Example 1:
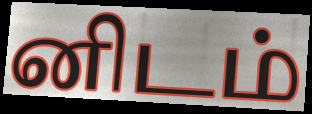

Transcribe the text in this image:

னிடம்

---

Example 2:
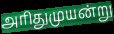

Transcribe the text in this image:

அரிதுமுயன்று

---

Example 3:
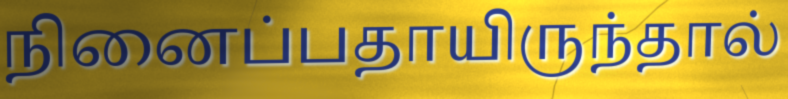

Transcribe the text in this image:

நினைப்பதாயிருந்தால்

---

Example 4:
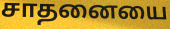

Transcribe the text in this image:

சாதனையை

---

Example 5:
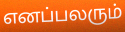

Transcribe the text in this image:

எனப்பலரும்